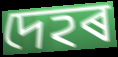
দেহৰ